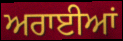
ਅਰਾਈਆਂ